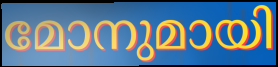
മോനുമായി